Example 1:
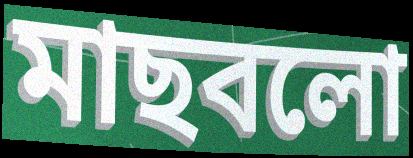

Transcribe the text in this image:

মাছবলো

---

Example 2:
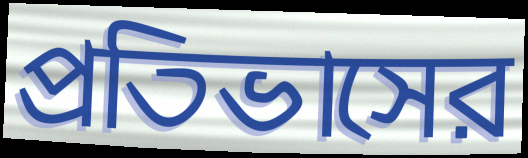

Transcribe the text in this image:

প্রতিভাসের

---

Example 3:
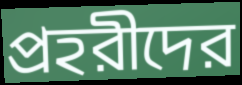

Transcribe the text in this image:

প্রহরীদের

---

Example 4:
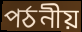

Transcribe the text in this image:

পঠনীয়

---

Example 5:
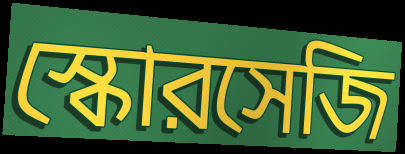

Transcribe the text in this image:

স্কোরসেজি